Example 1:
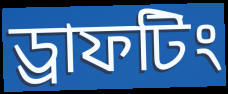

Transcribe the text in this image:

ড্রাফটিং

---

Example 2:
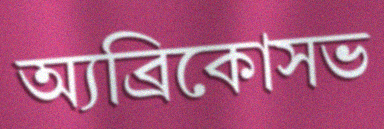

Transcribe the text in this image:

অ্যব্রিকোসভ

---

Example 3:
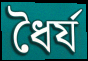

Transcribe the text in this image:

ধৈর্য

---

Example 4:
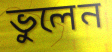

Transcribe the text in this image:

ভুলেন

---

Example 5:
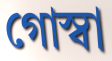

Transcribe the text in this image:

গোস্বা